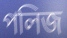
পলিজ